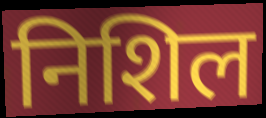
निशिल